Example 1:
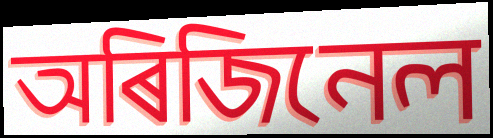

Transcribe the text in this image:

অৰিজিনেল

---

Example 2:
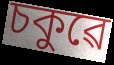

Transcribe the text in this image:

চকুৱে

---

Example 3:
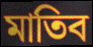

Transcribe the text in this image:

মাতিব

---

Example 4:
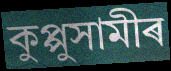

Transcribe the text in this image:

কুপ্পুসামীৰ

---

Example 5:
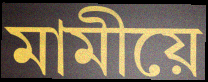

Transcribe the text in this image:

মামীয়ে